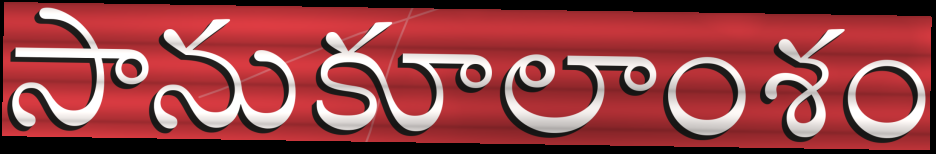
సానుకూలాంశం